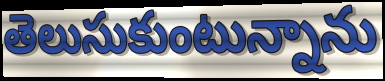
తెలుసుకుంటున్నాను